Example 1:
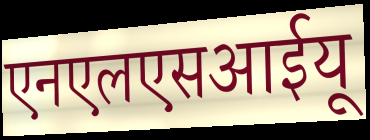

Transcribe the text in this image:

एनएलएसआईयू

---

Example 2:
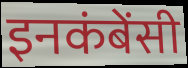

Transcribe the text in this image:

इनकंबेंसी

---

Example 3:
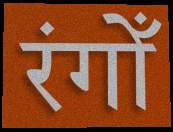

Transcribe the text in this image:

रंगोँ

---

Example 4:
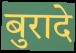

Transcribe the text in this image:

बुरादे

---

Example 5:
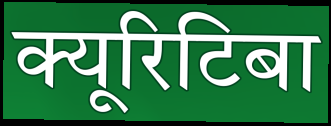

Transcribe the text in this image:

क्यूरिटिबा